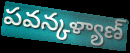
పవన్కళ్యాణ్